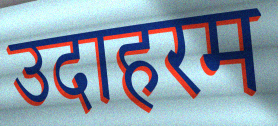
उदाहरम